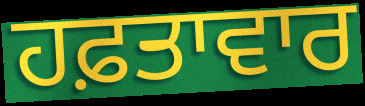
ਹਫ਼ਤਾਵਾਰ